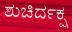
ಶುಚಿರ್ದಕ್ಷ